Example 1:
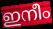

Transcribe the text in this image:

ഇനീം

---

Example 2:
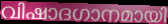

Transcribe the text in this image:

വിഷാദഗാനമായി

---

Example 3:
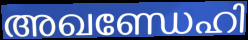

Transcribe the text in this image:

അഖണ്ഡേഹി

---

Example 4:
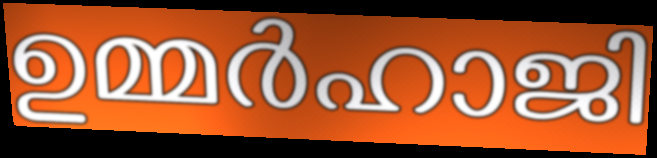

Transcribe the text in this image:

ഉമ്മർഹാജി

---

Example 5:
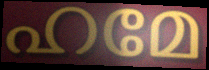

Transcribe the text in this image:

ഹമേ